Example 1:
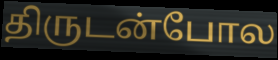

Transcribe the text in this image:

திருடன்போல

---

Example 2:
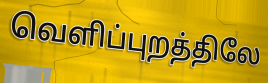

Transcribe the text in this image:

வெளிப்புறத்திலே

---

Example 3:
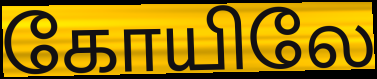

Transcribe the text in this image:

கோயிலே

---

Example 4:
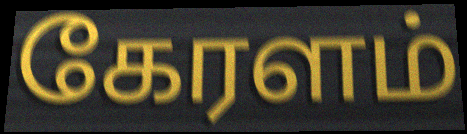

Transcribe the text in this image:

கேரளம்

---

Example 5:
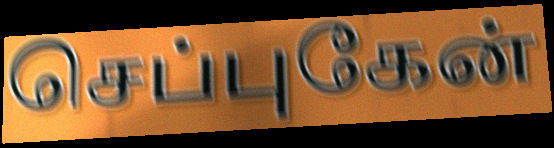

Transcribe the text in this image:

செப்புகேன்